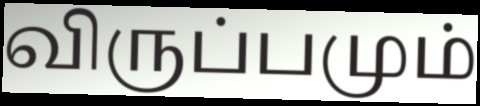
விருப்பமும்